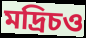
মদ্রিচও